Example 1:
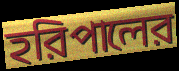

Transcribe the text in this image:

হরিপালের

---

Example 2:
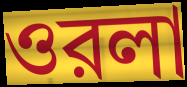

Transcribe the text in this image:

ওরলা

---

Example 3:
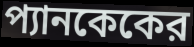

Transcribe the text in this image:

প্যানকেকের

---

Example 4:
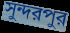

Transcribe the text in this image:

সুন্দরপুর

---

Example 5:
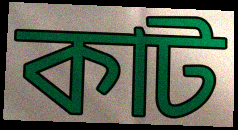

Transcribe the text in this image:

কাট